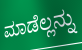
ಮಾಡೆಲ್ಲನ್ನು